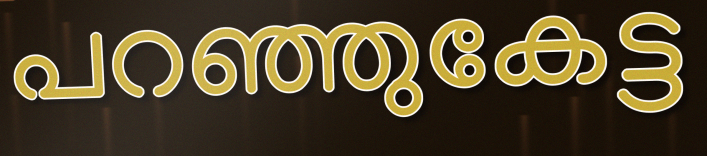
പറഞ്ഞുകേട്ട